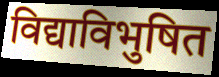
विद्याविभुषित